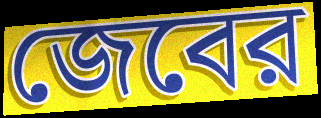
জেবের